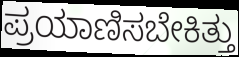
ಪ್ರಯಾಣಿಸಬೇಕಿತ್ತು